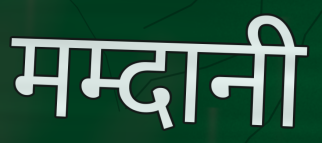
मम्दानी